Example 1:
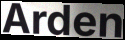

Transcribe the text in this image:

Arden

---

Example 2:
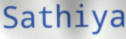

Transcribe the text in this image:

Sathiya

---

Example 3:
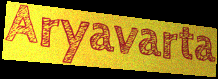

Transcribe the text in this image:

Aryavarta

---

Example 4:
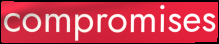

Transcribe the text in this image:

compromises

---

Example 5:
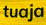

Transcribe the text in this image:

tuaja